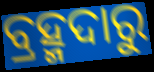
ବ୍ରହ୍ମଦାରୁ